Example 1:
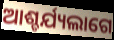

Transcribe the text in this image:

ଆଶ୍ଚର୍ଯ୍ୟଲାଗେ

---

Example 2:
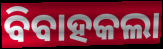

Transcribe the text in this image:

ବିବାହକଲା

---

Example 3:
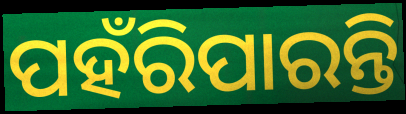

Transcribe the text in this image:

ପହଁରିପାରନ୍ତି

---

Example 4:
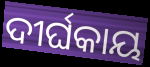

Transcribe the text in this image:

ଦୀର୍ଘକାୟ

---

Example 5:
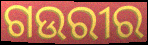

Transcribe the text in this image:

ଗଉରୀର